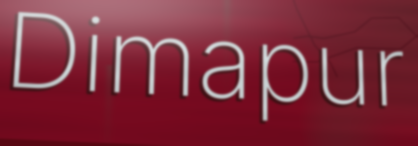
Dimapur